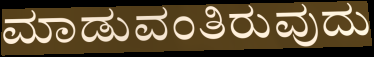
ಮಾಡುವಂತಿರುವುದು